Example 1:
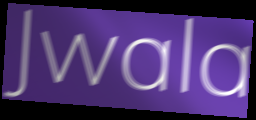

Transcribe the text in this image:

Jwala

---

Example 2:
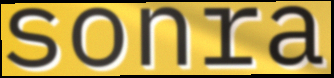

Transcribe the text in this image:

sonra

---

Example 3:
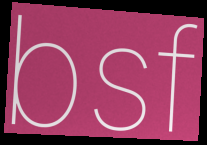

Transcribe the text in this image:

bsf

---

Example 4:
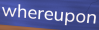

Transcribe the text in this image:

whereupon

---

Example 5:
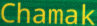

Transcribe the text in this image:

Chamak